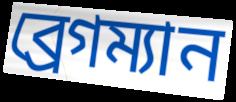
ব্রেগম্যান